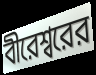
বীরেশ্বরের